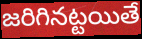
జరిగినట్టయితే